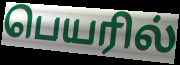
பெயரில்